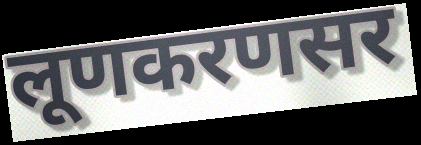
लूणकरणसर